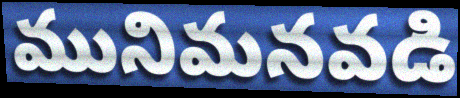
మునిమనవడి